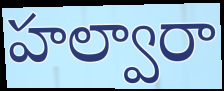
హల్వారా